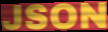
JSON